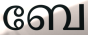
ബേ